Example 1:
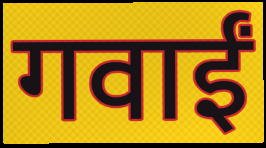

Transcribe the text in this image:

गवाईं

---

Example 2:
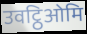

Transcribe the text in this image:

उवट्ठिओमि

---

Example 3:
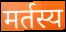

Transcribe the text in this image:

मर्तस्य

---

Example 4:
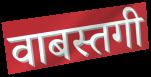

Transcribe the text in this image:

वाबस्तगी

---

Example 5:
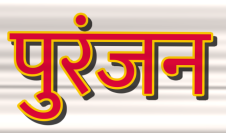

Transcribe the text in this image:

पुरंजन